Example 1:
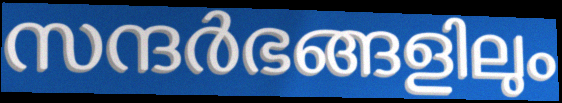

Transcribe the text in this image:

സന്ദർഭങ്ങളിലും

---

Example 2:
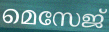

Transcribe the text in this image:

മെസേജ്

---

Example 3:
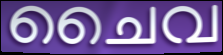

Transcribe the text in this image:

ചൈവ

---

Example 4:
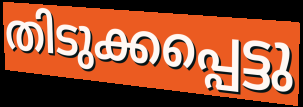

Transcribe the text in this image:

തിടുക്കപ്പെട്ടു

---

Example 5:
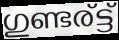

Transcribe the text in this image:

ഗുണ്ടര്ട്ട്